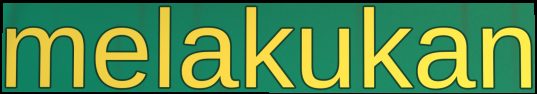
melakukan